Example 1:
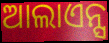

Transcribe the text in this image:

ଆଲାଏନ୍ସ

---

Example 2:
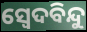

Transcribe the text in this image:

ସ୍ୱେଦବିନ୍ଦୁ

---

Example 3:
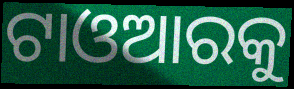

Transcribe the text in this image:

ଟାଓଆରକୁ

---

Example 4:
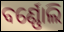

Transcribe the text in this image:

ବର୍ଣ୍ଣୋଲି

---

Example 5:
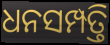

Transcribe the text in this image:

ଧନସମ୍ପତ୍ତି